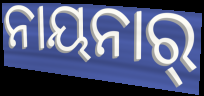
ନାୟନାର୍